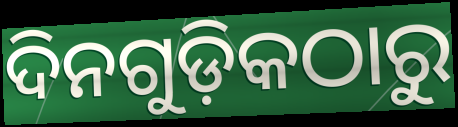
ଦିନଗୁଡ଼ିକଠାରୁ